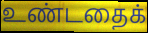
உண்டதைக்